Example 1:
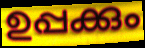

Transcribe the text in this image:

ഉപ്പക്കും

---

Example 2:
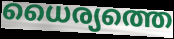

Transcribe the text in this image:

ധൈര്യത്തെ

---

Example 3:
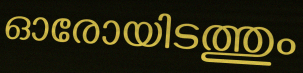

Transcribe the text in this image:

ഓരോയിടത്തും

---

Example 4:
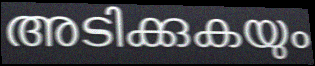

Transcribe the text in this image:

അടിക്കുകയും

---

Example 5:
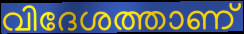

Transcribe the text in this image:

വിദേശത്താണ്